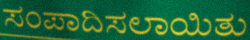
ಸಂಪಾದಿಸಲಾಯಿತು